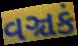
વઞ્ચકં